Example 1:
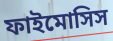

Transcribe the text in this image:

ফাইমোসিস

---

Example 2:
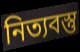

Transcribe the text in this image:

নিত্যবস্তু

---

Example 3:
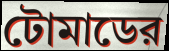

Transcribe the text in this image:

টোমাডের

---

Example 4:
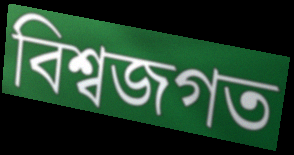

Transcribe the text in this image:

বিশ্বজগত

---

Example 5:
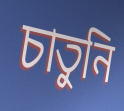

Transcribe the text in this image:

চাতুনি